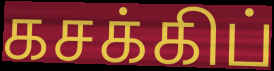
கசக்கிப்